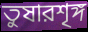
তুষারশৃঙ্গ